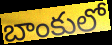
బాంకులో